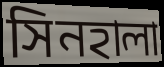
সিনহালা